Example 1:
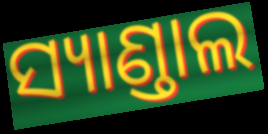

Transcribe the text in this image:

ସ୍ୟାଣ୍ଡାଲ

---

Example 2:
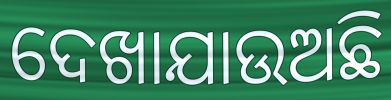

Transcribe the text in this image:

ଦେଖାଯାଉଅଛି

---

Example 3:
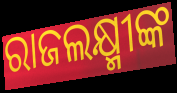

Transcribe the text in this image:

ରାଜଲକ୍ଷ୍ମୀଙ୍କ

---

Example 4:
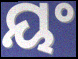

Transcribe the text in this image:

ୟଂ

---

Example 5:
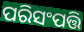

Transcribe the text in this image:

ପରିସଂପତ୍ତି